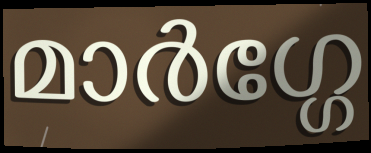
മാർഗ്ഗേ